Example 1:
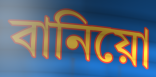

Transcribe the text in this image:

বানিয়ো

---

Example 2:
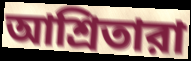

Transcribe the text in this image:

আশ্রিতারা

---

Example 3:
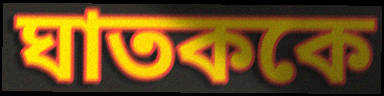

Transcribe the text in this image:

ঘাতককে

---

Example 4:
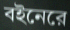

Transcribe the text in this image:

বইনেরে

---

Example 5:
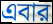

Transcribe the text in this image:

এবার